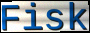
Fisk